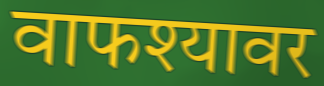
वाफश्यावर